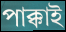
পাক্কাই